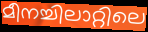
മീനച്ചിലാറ്റിലെ